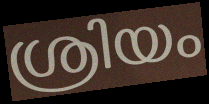
ശ്രിയം